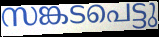
സങ്കടപെട്ടു